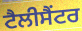
ਟੈਲੀਸੈਂਟਰ